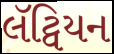
લૅટ્વિયન